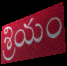
శ్రియం